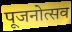
पूजनोत्सव